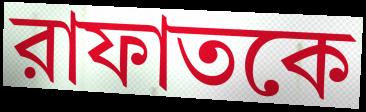
রাফাতকে